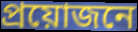
প্রয়োজনে